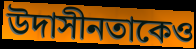
উদাসীনতাকেও